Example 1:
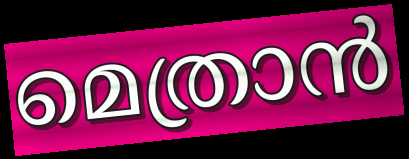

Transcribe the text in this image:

മെത്രാൻ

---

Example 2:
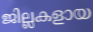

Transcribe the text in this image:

ജില്ലകളായ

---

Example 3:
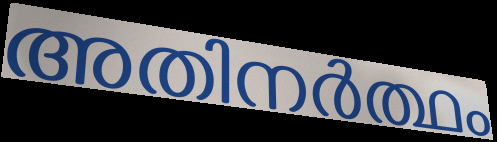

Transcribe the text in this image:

അതിനർത്ഥം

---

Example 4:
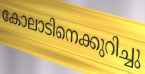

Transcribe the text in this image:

കോലാടിനെക്കുറിച്ചു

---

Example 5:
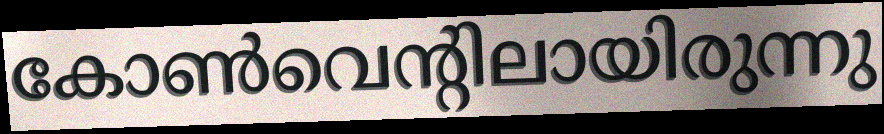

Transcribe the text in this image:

കോൺവെന്റിലായിരുന്നു